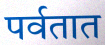
पर्वतात